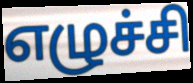
எழுச்சி